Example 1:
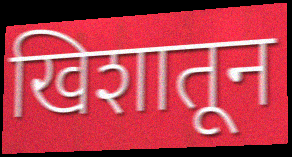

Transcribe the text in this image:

खिशातून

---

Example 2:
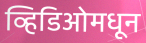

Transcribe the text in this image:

व्हिडिओमधून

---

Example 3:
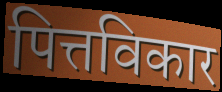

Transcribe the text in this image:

पित्तविकार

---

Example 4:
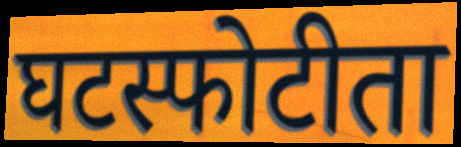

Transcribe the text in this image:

घटस्फोटीता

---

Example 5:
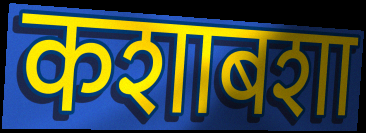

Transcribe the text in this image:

कशाबशा